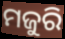
ମଜୁରି